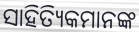
ସାହିତ୍ୟିକମାନଙ୍କ